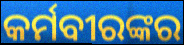
କର୍ମବୀରଙ୍କର